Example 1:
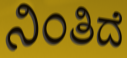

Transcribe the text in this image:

ನಿಂತಿದೆ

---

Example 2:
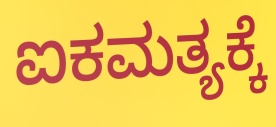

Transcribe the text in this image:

ಐಕಮತ್ಯಕ್ಕೆ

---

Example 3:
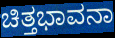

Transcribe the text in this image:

ಚಿತ್ತಭಾವನಾ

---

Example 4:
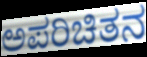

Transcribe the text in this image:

ಅಪರಿಚಿತನ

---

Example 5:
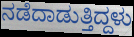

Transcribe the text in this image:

ನಡೆದಾಡುತ್ತಿದ್ದಳು